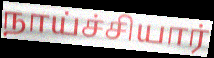
நாய்ச்சியார்